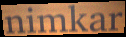
nimkar